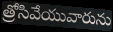
త్రోసివేయువారును